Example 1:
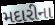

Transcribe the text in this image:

મદારીના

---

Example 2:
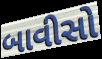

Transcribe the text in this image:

બાવીસો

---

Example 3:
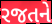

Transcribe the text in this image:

રજતને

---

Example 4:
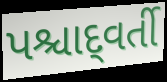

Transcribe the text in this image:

પશ્ચાદ્‌વર્તી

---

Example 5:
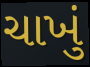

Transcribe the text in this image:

ચાખું